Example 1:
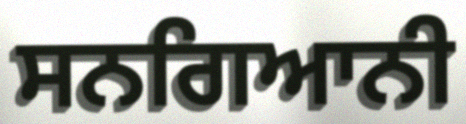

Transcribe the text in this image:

ਸਨਗਿਆਨੀ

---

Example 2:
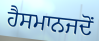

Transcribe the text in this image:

ਹੈਸਮਾਨਜਦੋਂ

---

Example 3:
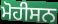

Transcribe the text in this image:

ਮੋਹੀਸਨ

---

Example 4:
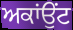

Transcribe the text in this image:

ਅਕਾਂਉਂਟ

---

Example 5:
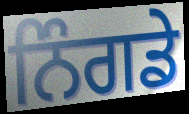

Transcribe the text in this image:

ਨਿੰਗਡੇ